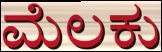
ಮೆಲಕು